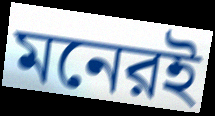
মনেরই